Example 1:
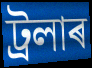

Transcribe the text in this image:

ট্ৰলাৰ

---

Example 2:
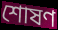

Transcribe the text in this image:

শোষণ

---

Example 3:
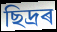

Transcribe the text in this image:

ছিদ্ৰৰ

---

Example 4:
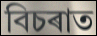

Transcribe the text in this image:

বিচৰাত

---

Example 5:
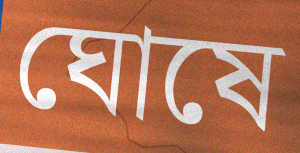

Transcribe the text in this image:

ঘোষে